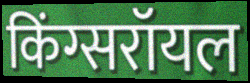
किंग्सरॉयल